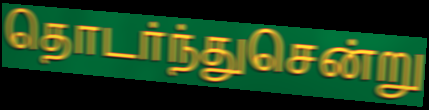
தொடர்ந்துசென்று